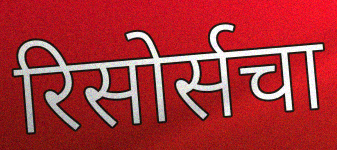
रिसोर्सचा